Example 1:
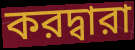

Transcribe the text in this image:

করদ্বারা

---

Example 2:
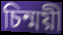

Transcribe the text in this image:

চিন্ময়ী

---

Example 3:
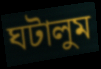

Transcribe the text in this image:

ঘটালুম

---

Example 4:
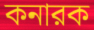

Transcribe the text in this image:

কনারক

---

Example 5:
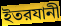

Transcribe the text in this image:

ইতরযানী